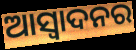
ଆସ୍ବାଦନର